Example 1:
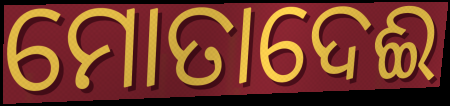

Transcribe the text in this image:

ମୋତାଦେଈ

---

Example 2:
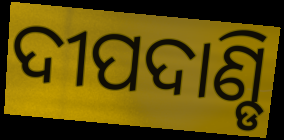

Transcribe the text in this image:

ଦୀପଦାଣ୍ଡି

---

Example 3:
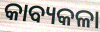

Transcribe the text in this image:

କାବ୍ୟକଳା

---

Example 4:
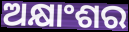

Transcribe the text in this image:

ଅକ୍ଷାଂଶର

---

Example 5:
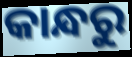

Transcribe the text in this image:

କାନ୍ଧରୁ